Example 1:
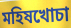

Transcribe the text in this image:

মহিষখোচা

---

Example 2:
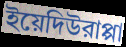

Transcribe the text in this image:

ইয়েদিউরাপ্পা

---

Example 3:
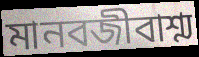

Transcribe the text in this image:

মানবজীবাশ্ম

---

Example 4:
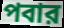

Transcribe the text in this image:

পবার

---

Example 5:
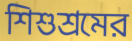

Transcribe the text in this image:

শিশুশ্রমের